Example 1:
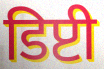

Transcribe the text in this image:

डिप्टी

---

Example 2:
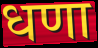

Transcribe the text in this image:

धणा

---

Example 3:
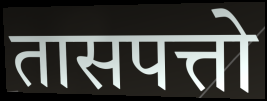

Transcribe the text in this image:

तासपत्तो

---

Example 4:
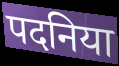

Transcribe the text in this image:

पदनिया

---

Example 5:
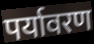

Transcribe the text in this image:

पर्यावरण